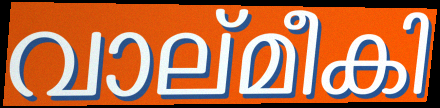
വാല്മീകി